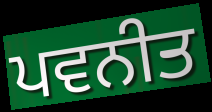
ਪਵਨੀਤ